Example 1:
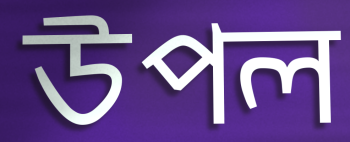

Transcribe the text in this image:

উপল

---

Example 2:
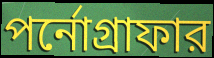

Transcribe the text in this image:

পর্নোগ্রাফার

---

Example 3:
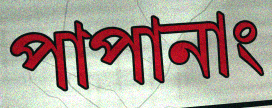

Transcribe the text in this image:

পাপানাং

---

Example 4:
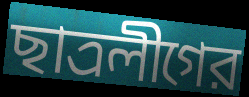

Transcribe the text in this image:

ছাত্রলীগের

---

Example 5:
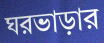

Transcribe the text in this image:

ঘরভাড়ার